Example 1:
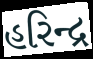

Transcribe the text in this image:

હરિન્દ્ર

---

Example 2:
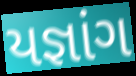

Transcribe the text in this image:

યજ્ઞાંગ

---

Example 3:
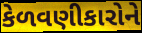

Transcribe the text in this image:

કેળવણીકારોને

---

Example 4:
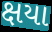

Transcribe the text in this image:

ક્ષયા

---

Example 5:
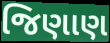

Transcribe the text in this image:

જિણાણ